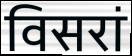
विसरां